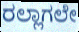
ರಲ್ಲಾಗಲೇ